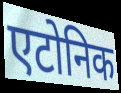
एटोनिक